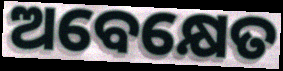
ଅବେକ୍ଷେତ